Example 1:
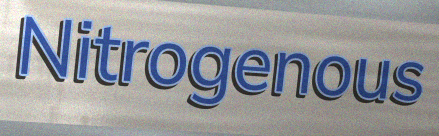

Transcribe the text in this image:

Nitrogenous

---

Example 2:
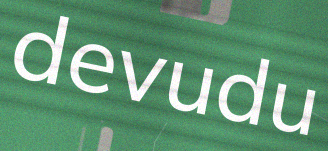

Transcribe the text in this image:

devudu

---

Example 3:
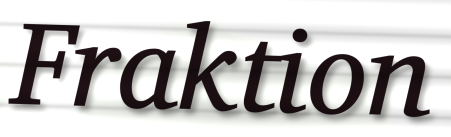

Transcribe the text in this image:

Fraktion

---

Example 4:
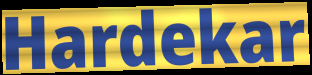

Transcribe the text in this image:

Hardekar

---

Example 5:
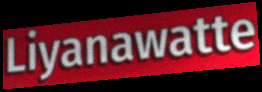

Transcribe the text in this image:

Liyanawatte